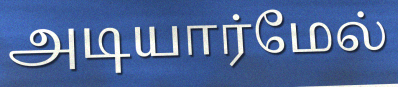
அடியார்மேல்